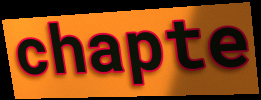
chapte